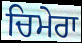
ਚਿਮੇਰਾ